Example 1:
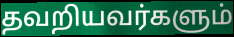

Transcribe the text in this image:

தவறியவர்களும்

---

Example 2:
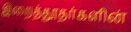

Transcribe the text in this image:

இறைத்தூதர்களின்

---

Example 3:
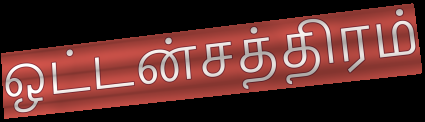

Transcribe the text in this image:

ஒட்டன்சத்திரம்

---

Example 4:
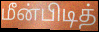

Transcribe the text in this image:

மீன்பிடித்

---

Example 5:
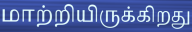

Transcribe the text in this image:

மாற்றியிருக்கிறது